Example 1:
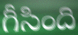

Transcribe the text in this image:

గీసింది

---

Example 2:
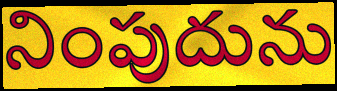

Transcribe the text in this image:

నింపుదును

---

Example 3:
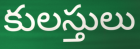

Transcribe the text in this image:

కులస్తులు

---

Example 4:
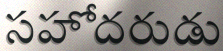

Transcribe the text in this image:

సహోదరుడు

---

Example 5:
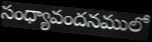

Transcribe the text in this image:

సంధ్యావందనములో